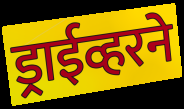
ड्राईव्हरने